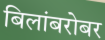
बिलांबरोबर